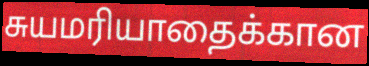
சுயமரியாதைக்கான